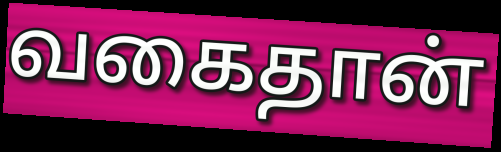
வகைதான்